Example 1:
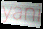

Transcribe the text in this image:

yani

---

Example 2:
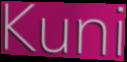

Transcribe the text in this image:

Kuni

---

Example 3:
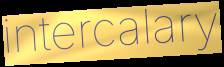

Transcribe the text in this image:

intercalary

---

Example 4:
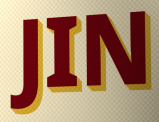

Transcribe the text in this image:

JIN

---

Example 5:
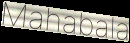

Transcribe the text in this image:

Mahabala